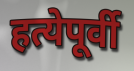
हत्येपूर्वी